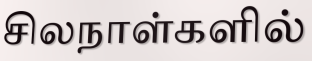
சிலநாள்களில்